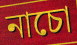
নাচো